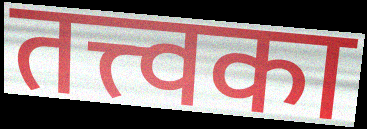
तत्त्वका